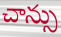
చాన్సు